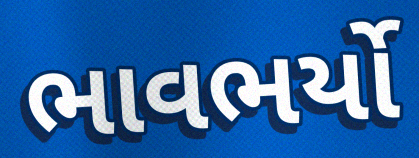
ભાવભર્યો